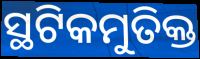
ସ୍ଥଟିକମୁତିକ୍ତ